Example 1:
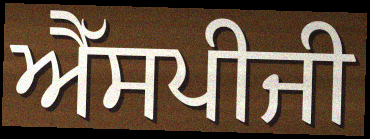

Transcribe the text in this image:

ਐੱਸਪੀਜੀ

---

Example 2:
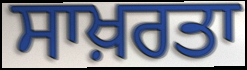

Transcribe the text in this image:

ਸਾਖ਼ਰਤਾ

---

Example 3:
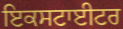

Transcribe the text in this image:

ਇਕਸਟਾਈਟਰ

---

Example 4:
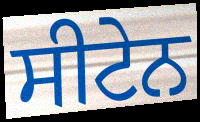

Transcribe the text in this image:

ਸੀਟੇਨ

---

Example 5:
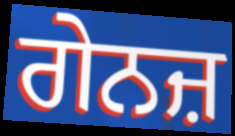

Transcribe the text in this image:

ਗੇਨਜ਼